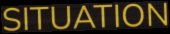
SITUATION